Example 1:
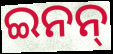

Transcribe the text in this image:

ଇନନ୍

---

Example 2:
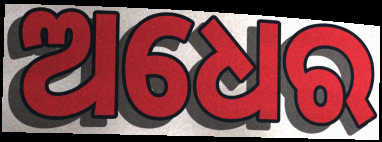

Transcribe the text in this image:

ଅଧେର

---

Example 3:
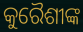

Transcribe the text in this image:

କୁରୈଶୀଙ୍କ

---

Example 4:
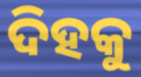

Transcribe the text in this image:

ଦିହକୁ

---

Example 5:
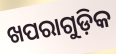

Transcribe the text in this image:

ଖପରାଗୁଡ଼ିକ